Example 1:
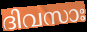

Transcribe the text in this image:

ദിവസാഃ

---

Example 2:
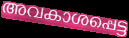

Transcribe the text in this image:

അവകാശപ്പെട്ട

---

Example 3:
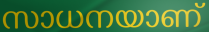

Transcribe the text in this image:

സാധനയാണ്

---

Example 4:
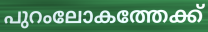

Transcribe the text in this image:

പുറംലോകത്തേക്ക്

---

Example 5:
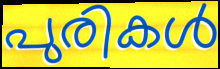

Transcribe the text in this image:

പുരികൾ